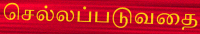
செல்லப்படுவதை